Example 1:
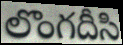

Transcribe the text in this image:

లొంగదీసి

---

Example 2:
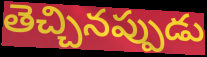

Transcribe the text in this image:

తెచ్చినప్పుడు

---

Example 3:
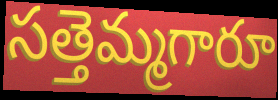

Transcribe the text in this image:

సత్తెమ్మగారూ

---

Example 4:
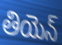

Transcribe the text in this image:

తియెన్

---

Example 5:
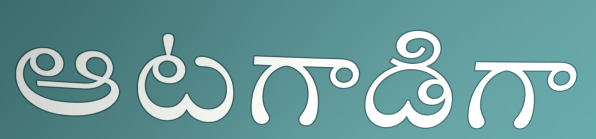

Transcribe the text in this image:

ఆటగాడిగా